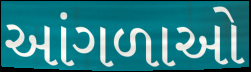
આંગળાઓ